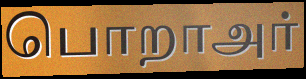
பொறாஅர்